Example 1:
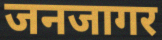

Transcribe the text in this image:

जनजागर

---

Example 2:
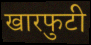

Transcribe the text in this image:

खारफुटी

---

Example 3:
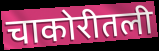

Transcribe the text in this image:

चाकोरीतली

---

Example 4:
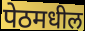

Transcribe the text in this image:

पेठमधील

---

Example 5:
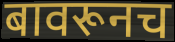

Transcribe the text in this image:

बावरूनच